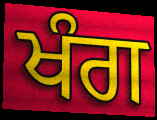
ਖੰਗ